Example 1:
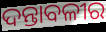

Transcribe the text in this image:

ଦନ୍ତାବଳୀର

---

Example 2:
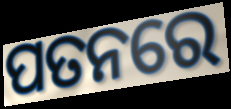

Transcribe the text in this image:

ପତନରେ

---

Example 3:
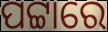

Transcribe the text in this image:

ପଟ୍ଟାରେ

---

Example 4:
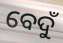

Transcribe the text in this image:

ବେଦୁଁ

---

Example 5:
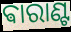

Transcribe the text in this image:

ଵାରାଣ୍ଟ